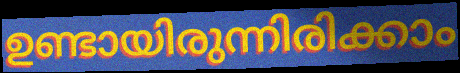
ഉണ്ടായിരുന്നിരിക്കാം